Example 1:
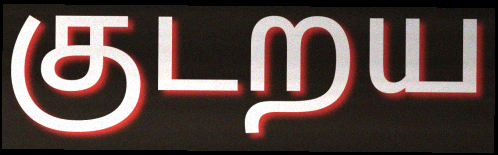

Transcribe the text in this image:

குடறய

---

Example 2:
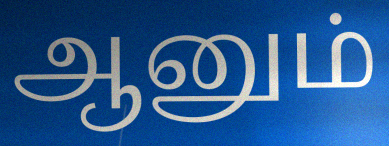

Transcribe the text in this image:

ஆனும்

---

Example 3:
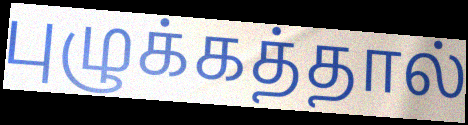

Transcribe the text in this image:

புழுக்கத்தால்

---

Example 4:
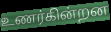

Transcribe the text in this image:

உணர்கின்றன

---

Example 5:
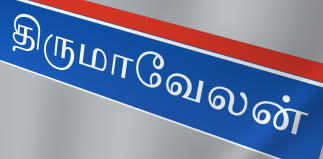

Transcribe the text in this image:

திருமாவேலன்